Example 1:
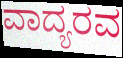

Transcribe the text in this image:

ವಾದ್ಯರವ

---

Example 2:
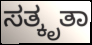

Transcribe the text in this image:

ಸತ್ಕೃತಾ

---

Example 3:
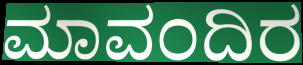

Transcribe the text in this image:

ಮಾವಂದಿರ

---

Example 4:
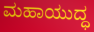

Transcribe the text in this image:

ಮಹಾಯುದ್ಧ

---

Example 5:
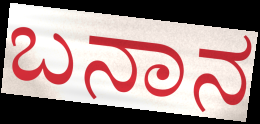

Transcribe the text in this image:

ಬನಾನ